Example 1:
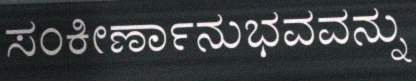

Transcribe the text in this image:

ಸಂಕೀರ್ಣಾನುಭವವನ್ನು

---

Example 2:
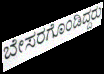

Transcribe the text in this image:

ಬೇಸರಗೊಂಡಿದ್ದರು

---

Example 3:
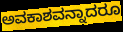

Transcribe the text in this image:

ಅವಕಾಶವನ್ನಾದರೂ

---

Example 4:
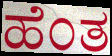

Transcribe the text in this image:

ಹೆಂತ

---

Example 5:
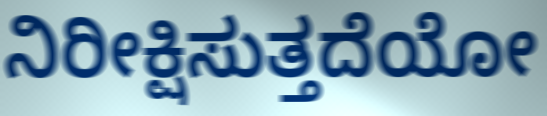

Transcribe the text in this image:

ನಿರೀಕ್ಷಿಸುತ್ತದೆಯೋ